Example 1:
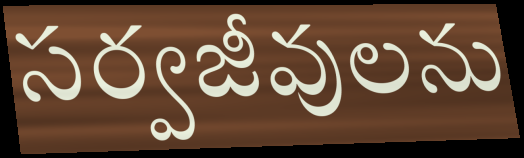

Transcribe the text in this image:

సర్వజీవులను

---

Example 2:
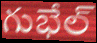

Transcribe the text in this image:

గుభేల్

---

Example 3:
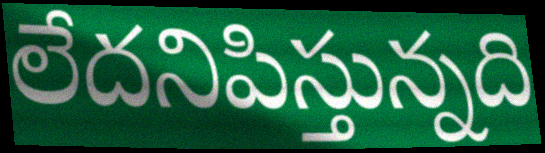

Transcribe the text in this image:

లేదనిపిస్తున్నది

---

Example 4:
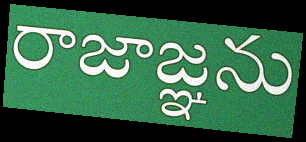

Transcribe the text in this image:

రాజాజ్ఞను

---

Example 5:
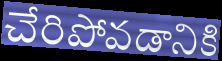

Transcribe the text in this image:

చేరిపోవడానికి